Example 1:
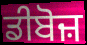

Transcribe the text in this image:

ਡੀਬੋਜ਼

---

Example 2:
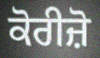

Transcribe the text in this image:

ਕੋਰੀਜ਼ੋ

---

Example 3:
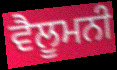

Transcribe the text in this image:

ਵੈਲੂਮਨੀ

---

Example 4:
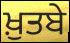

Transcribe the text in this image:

ਖ਼ੁਤਬੇ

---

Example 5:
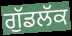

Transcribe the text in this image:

ਗੁੱਡਲੱਕ